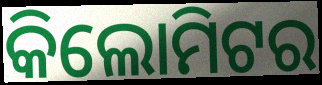
କିଲୋମିଟର